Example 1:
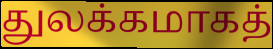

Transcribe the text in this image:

துலக்கமாகத்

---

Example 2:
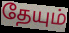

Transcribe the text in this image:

தேயும்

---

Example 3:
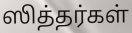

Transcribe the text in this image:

ஸித்தர்கள்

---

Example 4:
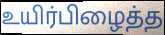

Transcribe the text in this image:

உயிர்பிழைத்த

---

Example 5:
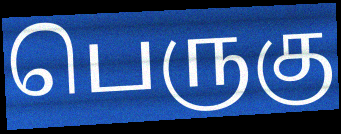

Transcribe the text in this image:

பெருகு